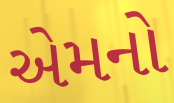
એમનો